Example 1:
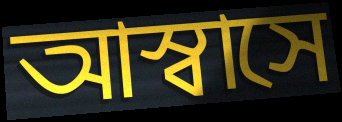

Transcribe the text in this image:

আস্বাসে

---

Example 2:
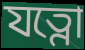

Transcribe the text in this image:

যত্নো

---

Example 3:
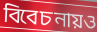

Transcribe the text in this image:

বিবেচনায়ও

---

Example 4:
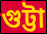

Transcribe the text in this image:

গুট্টা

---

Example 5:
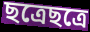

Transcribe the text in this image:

ছত্রেছত্রে